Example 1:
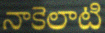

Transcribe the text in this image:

నాకెలాటి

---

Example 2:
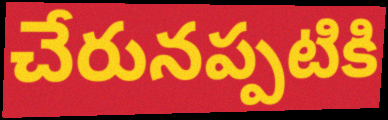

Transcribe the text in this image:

చేరునప్పటికి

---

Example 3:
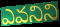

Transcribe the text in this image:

ఎవనిని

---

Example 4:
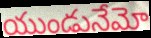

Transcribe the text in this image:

యుండునేమో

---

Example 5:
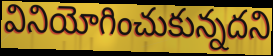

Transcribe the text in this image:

వినియోగించుకున్నదని